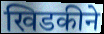
खिडकीने